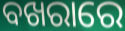
ବଖରାରେ